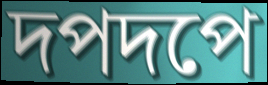
দপদপে